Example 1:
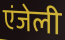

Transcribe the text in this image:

एंजेली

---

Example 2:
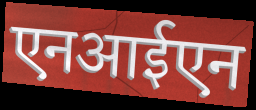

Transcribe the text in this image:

एनआईएन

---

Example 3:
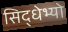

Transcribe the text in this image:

सिद्धेभ्यो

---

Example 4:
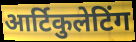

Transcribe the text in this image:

आर्टिकुलेटिंग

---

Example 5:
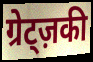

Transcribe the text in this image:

ग्रेट्ज़की